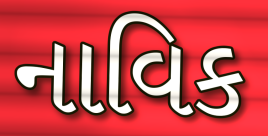
નાવિક